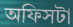
অফিসটা